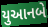
યુઆનબે